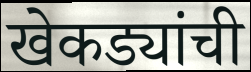
खेकड्यांची